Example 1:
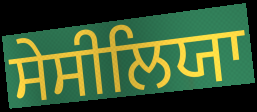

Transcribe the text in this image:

ਸੇਸੀਲਿਯਾ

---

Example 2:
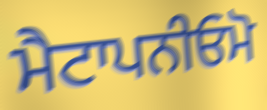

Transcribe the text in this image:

ਮੈਟਾਪਨੀਓਮੋ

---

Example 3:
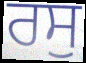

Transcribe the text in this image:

ਰਸੁ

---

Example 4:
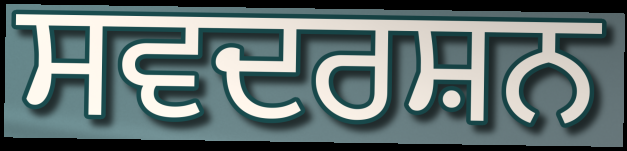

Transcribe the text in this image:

ਸਵਦਰਸ਼ਨ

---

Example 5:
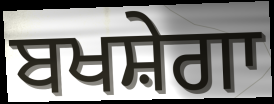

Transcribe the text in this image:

ਬਖਸ਼ੇਗਾ